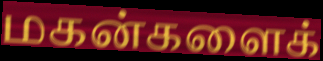
மகன்களைக்